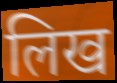
लिख